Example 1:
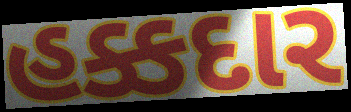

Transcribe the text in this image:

હક્કદાર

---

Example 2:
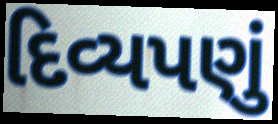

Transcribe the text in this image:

દિવ્યપણું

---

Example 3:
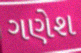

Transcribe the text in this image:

ગણેશ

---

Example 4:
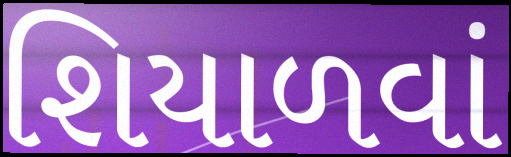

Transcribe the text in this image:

શિયાળવાં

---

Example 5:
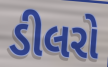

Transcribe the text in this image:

ડીલરો